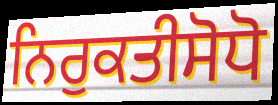
ਨਿਰੁਕਤੀਸੋਧੋ